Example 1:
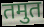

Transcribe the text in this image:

तमुत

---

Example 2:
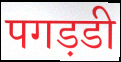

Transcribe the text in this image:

पगड़डी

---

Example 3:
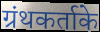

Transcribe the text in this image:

ग्रंथकर्ताके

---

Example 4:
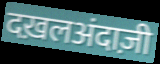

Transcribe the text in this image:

दख़लअंदाज़ी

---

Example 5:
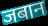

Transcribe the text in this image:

जबान